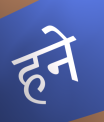
हने